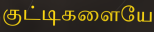
குட்டிகளையே